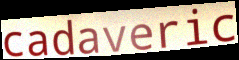
cadaveric